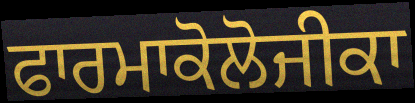
ਫਾਰਮਾਕੋਲੋਜੀਕਾ